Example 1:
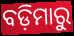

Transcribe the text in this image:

ବଡ଼ିମାରୁ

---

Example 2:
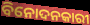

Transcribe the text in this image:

ବିନୋଦନକାରୀ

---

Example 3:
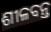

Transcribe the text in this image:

ଶୀଳବନ୍ତ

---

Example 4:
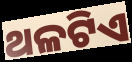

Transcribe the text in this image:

ଥଳଟିଏ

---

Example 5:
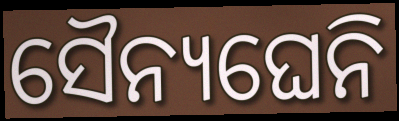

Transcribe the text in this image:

ସୈନ୍ୟଘେନି